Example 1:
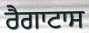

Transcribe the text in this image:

ਰੈਗਾਟਾਸ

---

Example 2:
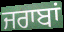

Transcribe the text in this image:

ਜਰਾਬਾਂ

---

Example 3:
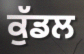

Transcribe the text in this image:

ਕੁੱਡਲ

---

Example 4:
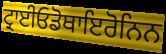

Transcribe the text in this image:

ਟ੍ਰਾਈਓਡੋਥਾਇਰੋਨਿਨ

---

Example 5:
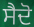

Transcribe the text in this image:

ਸੈਦੋ